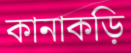
কানাকড়ি